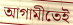
আগামীতেই